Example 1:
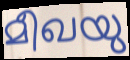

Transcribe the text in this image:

മീഖയു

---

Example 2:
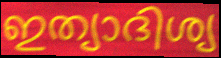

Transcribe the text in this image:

ഇത്യാദിശ്യ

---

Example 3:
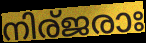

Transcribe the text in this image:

നിര്ജരാഃ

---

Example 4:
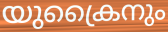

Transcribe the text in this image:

യുക്രൈനും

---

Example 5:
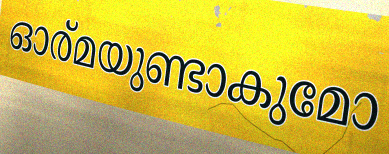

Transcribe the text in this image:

ഓര്മയുണ്ടാകുമോ